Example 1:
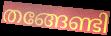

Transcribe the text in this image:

തങ്ങേണ്ടി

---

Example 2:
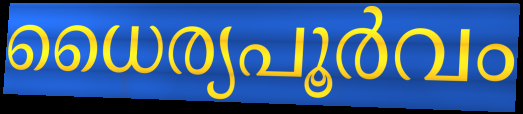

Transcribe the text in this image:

ധൈര്യപൂർവം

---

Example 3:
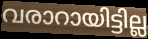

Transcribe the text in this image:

വരാറായിട്ടില്ല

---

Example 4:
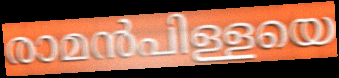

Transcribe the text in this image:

രാമൻപിള്ളയെ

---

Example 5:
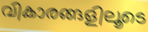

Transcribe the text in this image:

വികാരങ്ങളിലൂടെ